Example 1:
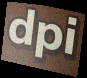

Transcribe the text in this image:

dpi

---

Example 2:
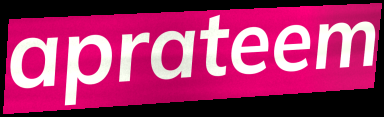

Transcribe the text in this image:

aprateem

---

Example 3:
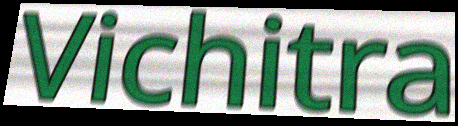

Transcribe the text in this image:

Vichitra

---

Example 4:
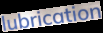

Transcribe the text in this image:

lubrication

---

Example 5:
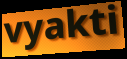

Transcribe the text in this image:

vyakti